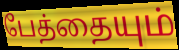
பேத்தையும்